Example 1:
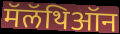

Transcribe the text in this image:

मॅलॅथिऑन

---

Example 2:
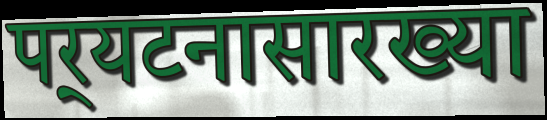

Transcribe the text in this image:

पर्यटनासारख्या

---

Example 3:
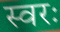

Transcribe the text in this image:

स्वरः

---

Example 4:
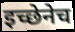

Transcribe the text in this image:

इच्छेनेच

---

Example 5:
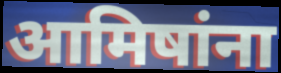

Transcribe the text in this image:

आमिषांना